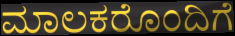
ಮಾಲಕರೊಂದಿಗೆ